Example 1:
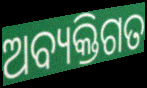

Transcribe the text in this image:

ଅବ୍ୟକ୍ତିଗତ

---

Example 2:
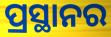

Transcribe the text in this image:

ପ୍ରସ୍ଥାନର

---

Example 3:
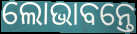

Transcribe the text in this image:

ଲୋଭାବନ୍ତେ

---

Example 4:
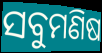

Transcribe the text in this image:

ସବୁମଣିଷ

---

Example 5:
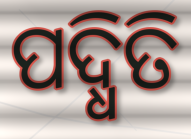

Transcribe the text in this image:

ପଦ୍ଧିତି